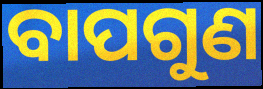
ବାପଗୁଣ